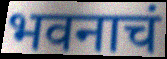
भवनाचं